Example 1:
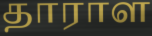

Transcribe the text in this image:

தாராள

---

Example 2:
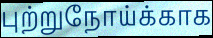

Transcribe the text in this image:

புற்றுநோய்க்காக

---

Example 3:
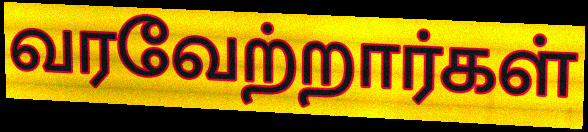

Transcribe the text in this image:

வரவேற்றார்கள்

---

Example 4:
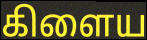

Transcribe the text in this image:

கிளைய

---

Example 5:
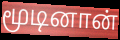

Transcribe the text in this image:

மூடினான்